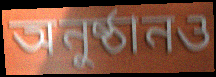
অনুষ্ঠানও